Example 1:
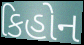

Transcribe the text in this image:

કિહોન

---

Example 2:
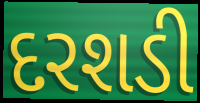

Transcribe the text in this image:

દરશડી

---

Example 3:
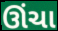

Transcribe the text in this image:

ઊંચા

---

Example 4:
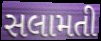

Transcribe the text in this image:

સલામતી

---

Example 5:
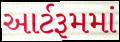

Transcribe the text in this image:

આર્ટરૂમમાં